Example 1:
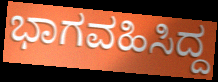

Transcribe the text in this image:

ಭಾಗವಹಿಸಿದ್ದ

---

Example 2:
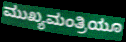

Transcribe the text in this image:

ಮುಖ್ಯಮಂತ್ರಿಯೂ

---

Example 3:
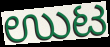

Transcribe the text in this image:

ಉುಟ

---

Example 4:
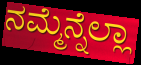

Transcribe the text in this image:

ನಮ್ಮೆನ್ನೆಲ್ಲಾ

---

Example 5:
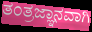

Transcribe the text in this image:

ತಂತ್ರಜ್ಞಾನವಾಗಿ